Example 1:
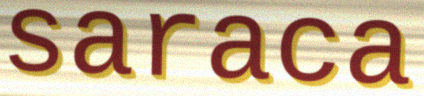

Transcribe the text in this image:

saraca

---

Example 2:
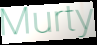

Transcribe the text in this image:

Murty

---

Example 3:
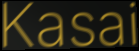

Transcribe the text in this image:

Kasai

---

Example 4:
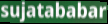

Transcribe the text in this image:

sujatababar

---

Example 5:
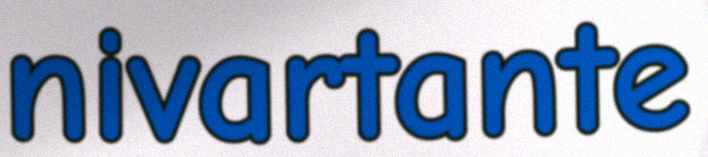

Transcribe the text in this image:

nivartante